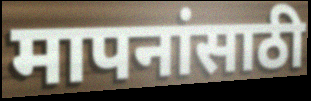
मापनांसाठी